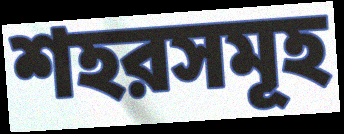
শহরসমূহ